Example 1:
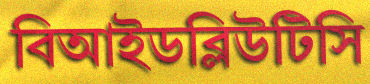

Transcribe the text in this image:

বিআইডব্লিউটিসি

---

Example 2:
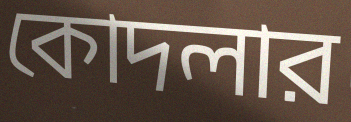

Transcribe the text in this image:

কোদলার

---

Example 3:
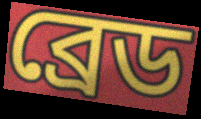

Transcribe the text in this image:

ব্রেড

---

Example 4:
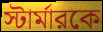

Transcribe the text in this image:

স্টার্মারকে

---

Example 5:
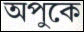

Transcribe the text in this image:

অপুকে